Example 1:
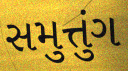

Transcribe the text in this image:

સમુત્તુંગ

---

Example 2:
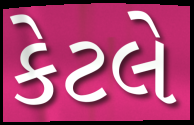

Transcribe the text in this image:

કેટલે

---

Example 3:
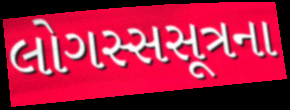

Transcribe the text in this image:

લોગસ્સસૂત્રના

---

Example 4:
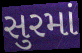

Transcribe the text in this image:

સુરમાં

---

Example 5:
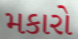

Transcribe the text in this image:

મકારો